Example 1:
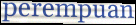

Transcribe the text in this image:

perempuan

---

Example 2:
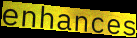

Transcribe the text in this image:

enhances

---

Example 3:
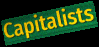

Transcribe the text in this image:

Capitalists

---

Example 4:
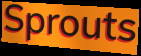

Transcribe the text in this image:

Sprouts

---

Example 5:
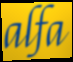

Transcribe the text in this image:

alfa